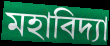
মহাবিদ্যা